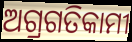
ଅଗ୍ରଗତିକାମୀ